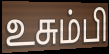
உசும்பி